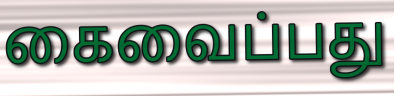
கைவைப்பது